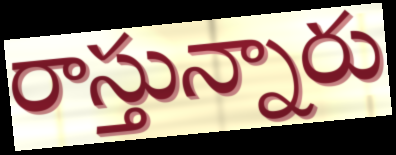
రాస్తున్నారు